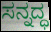
ಸನ್ನದ್ಧ